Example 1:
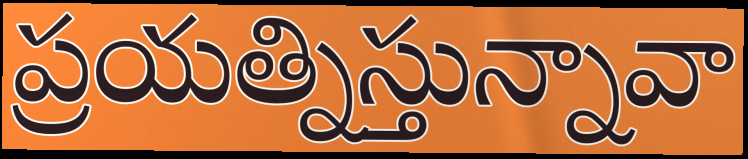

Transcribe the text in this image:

ప్రయత్నిస్తున్నావా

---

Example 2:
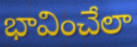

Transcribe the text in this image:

భావించేలా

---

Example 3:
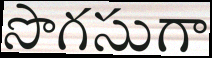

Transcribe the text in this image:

సొగసుగా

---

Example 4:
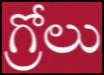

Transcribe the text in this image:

గ్రోలు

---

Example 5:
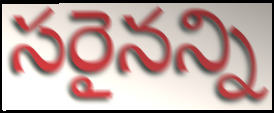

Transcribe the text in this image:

సరైనన్ని